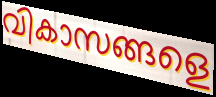
വികാസങ്ങളെ